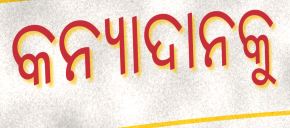
କନ୍ୟାଦାନକୁ